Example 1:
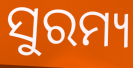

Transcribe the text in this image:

ସୁରମ୍ୟ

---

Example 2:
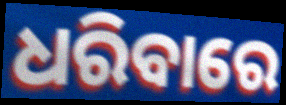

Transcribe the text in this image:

ଧରିବାରେ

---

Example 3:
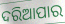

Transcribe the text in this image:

ଦରିଆପାର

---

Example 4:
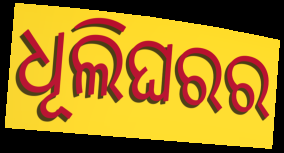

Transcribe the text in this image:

ଧୂଲିଘରର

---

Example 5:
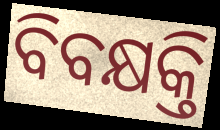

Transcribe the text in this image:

ବିବକ୍ଷକ୍ତି